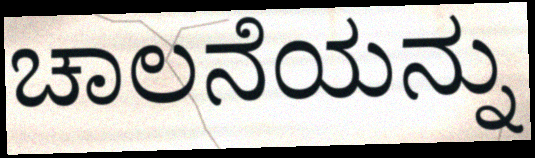
ಚಾಲನೆಯನ್ನು